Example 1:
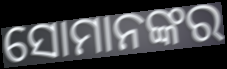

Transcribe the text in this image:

ସୋମାନଙ୍କର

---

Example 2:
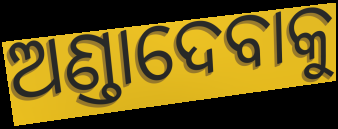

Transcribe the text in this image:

ଅଣ୍ଡାଦେବାକୁ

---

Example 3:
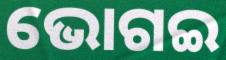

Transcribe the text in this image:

ଭୋଗଇ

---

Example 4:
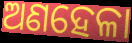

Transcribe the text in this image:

ଅଣହେଳା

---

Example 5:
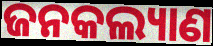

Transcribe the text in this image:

ଜନକଲ୍ୟାଣ